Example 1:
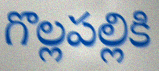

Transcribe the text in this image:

గొల్లపల్లికి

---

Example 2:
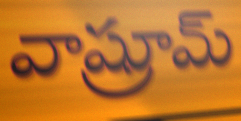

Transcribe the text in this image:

వాష్రూమ్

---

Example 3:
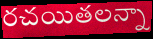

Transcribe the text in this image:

రచయితలన్నా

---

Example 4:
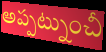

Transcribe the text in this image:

అప్పట్నుంచీ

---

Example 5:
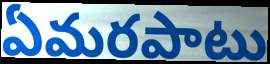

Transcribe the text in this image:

ఏమరపాటు